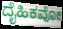
ದೈಹಿಕವೋ